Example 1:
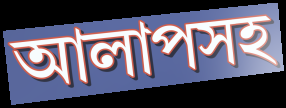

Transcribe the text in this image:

আলাপসহ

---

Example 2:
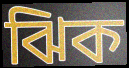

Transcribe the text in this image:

ঝিক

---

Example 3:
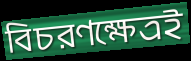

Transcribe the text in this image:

বিচরণক্ষেত্রই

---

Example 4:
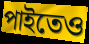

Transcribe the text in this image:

পাইতেও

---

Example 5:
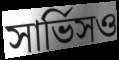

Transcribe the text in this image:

সার্ভিসও